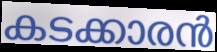
കടക്കാരൻ